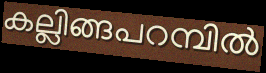
കല്ലിങ്ങപറമ്പിൽ